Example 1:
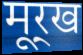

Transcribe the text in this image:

मूर्ख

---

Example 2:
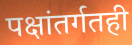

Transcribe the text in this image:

पक्षांतर्गतही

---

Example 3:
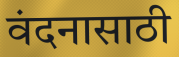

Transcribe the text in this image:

वंदनासाठी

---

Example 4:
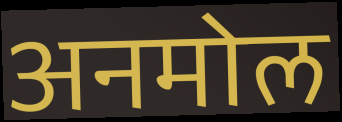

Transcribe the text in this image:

अनमोल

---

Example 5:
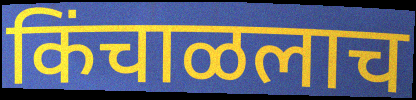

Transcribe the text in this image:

किंचाळलाच